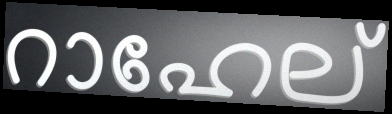
റാഹേല്